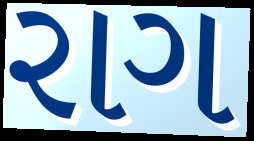
રાગ